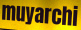
muyarchi